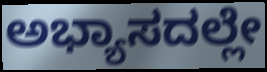
ಅಭ್ಯಾಸದಲ್ಲೇ